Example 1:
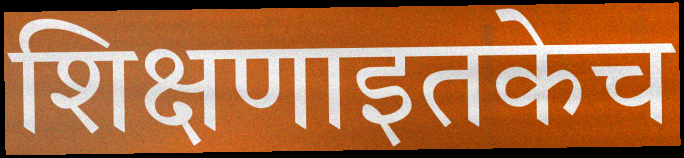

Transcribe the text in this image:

शिक्षणाइतकेच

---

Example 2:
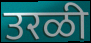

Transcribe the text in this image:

उरळी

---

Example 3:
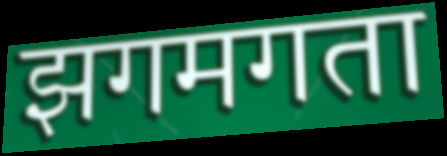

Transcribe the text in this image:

झगमगता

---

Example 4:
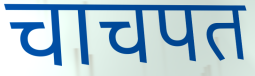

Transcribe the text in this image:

चाचपत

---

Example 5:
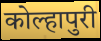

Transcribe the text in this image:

कोल्हापुरी